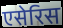
एसेरिस